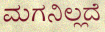
ಮಗನಿಲ್ಲದೆ